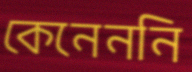
কেনেননি